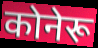
कोनेरू